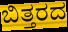
ಬಿತ್ತರದ